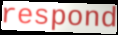
respond